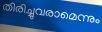
തിരിച്ചുവരാമെന്നും